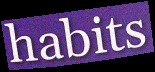
habits